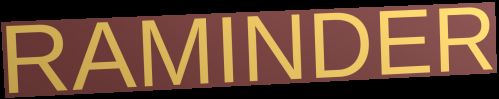
RAMINDER